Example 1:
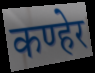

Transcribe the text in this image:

कण्हेर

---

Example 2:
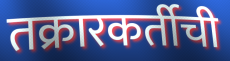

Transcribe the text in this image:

तक्रारकर्तीची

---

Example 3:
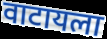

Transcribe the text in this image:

वाटायला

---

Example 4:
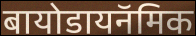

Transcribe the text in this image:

बायोडायनॅमिक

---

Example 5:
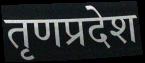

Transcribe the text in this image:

तृणप्रदेश